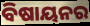
ବିଷାୟନର